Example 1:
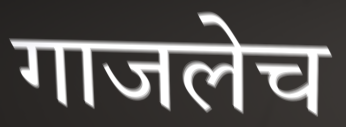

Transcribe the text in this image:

गाजलेच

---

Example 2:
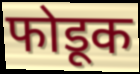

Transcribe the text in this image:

फोडूक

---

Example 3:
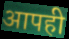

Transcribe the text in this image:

आपही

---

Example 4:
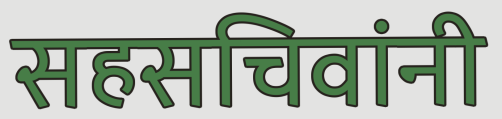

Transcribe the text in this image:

सहसचिवांनी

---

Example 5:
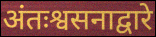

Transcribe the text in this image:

अंतःश्वसनाद्वारे